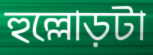
হুল্লোড়টা